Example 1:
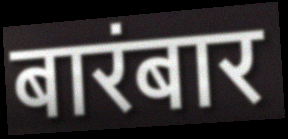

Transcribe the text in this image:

बारंबार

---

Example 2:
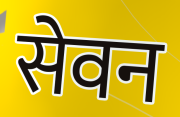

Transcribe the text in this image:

सेवन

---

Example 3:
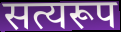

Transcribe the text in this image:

सत्यरूप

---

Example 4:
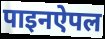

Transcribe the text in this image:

पाइनऐपल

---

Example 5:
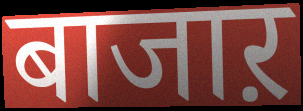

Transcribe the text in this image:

बाजाऱ